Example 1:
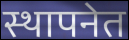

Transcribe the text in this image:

स्थापनेत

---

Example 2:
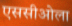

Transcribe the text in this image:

एससीओला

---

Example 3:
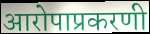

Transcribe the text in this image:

आरोपाप्रकरणी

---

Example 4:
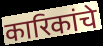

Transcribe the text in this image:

कारिकांचे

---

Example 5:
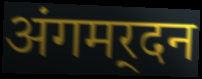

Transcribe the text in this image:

अंगमर्दन